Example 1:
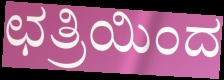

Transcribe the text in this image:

ಛತ್ರಿಯಿಂದ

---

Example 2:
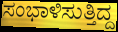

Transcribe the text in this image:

ಸಂಭಾಳಿಸುತ್ತಿದ್ದ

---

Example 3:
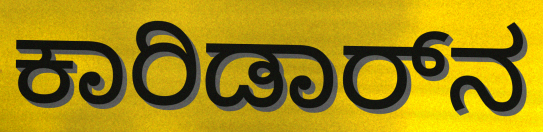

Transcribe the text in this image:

ಕಾರಿಡಾರ್‌ನ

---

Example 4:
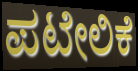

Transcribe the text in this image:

ಪಟೇಲಿಕೆ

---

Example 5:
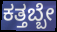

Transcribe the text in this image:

ಕತ್ತಬ್ಬೇ